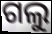
ଗଲୁ